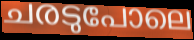
ചരടുപോലെ